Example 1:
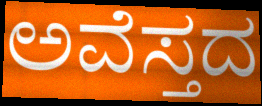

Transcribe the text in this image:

ಅವೆಸ್ತದ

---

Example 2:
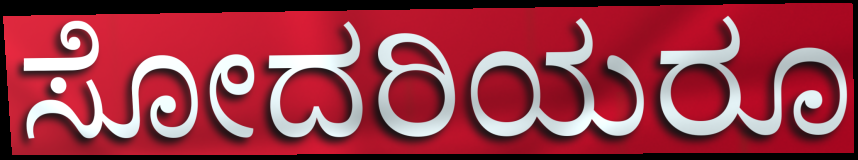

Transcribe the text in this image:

ಸೋದರಿಯರೂ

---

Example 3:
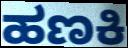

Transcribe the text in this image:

ಹಣಕಿ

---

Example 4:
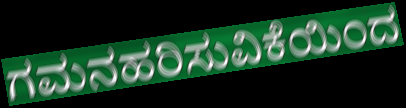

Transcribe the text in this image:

ಗಮನಹರಿಸುವಿಕೆಯಿಂದ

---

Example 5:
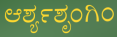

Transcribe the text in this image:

ಆರ್ಶ್ಯಶೃಂಗಿಂ